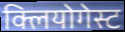
क्लियोगेस्ट